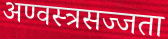
अण्वस्त्रसज्जता